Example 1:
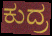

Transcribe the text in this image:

ಕುದ್ರ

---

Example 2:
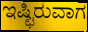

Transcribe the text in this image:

ಇಷ್ಟಿರುವಾಗ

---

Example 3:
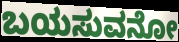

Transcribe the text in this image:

ಬಯಸುವನೋ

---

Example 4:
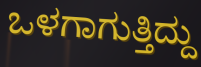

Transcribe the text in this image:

ಒಳಗಾಗುತ್ತಿದ್ದು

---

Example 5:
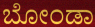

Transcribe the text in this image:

ಬೋಂಡಾ